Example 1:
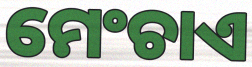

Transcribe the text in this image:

ମେଂଚାଏ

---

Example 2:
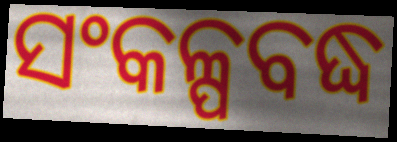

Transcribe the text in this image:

ସଂକଳ୍ପବଦ୍ଧ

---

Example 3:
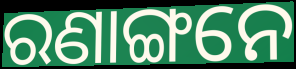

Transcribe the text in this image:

ରଣାଙ୍ଗନେ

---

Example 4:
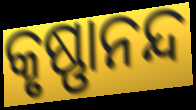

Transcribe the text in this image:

କୃଷ୍ଣାନନ୍ଦ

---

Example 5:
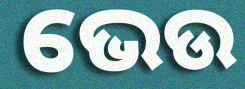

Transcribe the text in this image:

ଭେଉ